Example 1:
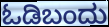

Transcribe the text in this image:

ಓಡಿಬಂದು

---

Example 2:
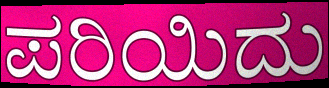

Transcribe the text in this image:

ಪರಿಯಿದು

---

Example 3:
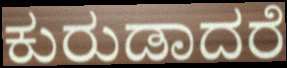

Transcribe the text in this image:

ಕುರುಡಾದರೆ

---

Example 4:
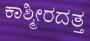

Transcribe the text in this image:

ಕಾಶ್ಮೀರದತ್ತ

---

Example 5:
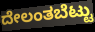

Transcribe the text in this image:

ದೇಲಂತಬೆಟ್ಟು